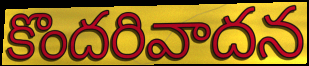
కొందరివాదన